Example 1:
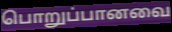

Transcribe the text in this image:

பொறுப்பானவை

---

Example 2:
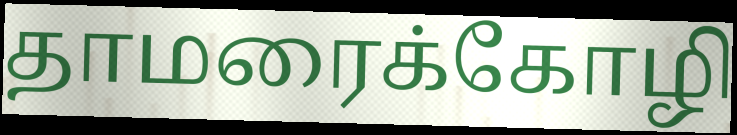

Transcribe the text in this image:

தாமரைக்கோழி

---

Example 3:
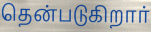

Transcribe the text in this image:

தென்படுகிறார்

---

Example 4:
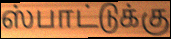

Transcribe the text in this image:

ஸ்பாட்டுக்கு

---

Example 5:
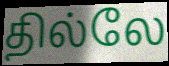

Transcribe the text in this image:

தில்லே